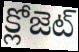
క్లోజెట్